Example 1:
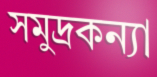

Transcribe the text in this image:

সমুদ্রকন্যা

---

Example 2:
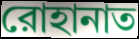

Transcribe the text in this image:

রোহানাত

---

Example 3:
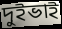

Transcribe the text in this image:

দুইভাই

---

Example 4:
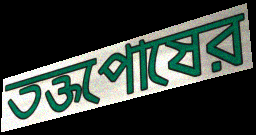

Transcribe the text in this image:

তক্তপোষের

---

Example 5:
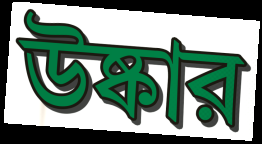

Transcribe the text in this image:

উষ্কার